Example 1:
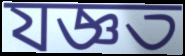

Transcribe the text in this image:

যজ্ঞত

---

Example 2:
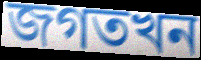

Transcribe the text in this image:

জগতখন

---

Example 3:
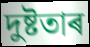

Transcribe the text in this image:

দুষ্টতাৰ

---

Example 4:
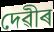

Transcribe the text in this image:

দেৱীৰ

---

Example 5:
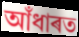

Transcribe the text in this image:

আঁধাৰত